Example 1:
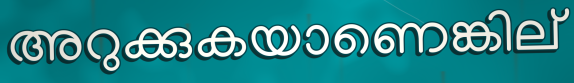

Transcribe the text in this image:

അറുക്കുകയാണെങ്കില്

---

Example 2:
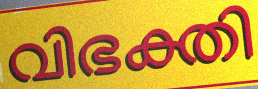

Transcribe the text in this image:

വിഭക്തി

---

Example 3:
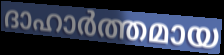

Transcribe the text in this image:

ദാഹാർത്തമായ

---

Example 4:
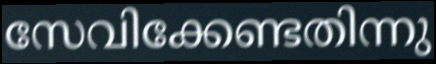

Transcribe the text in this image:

സേവിക്കേണ്ടതിന്നു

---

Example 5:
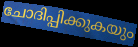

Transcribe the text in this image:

ചോദിപ്പിക്കുകയും